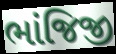
ભાંજિજી